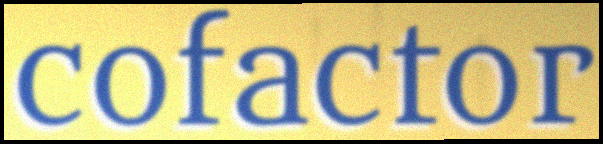
cofactor